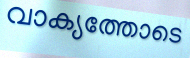
വാക്യത്തോടെ